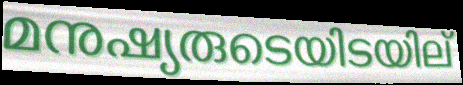
മനുഷ്യരുടെയിടയില്